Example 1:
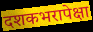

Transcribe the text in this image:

दशकभरापेक्षा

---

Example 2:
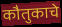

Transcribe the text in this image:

कौतुकाचे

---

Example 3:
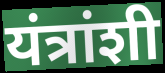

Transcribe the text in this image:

यंत्रांशी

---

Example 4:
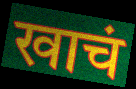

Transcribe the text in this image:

खाचं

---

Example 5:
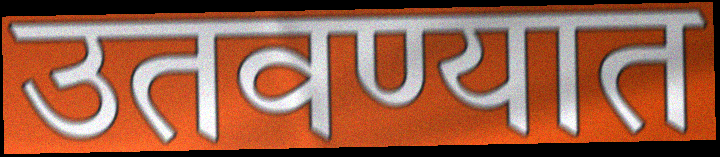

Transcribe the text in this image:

उतवण्यात